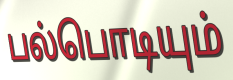
பல்பொடியும்